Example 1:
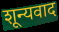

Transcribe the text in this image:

शून्यवाद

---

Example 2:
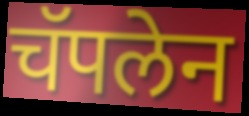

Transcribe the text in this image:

चॅपलेन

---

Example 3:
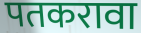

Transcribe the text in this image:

पतकरावा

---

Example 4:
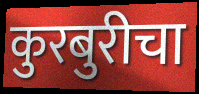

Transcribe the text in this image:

कुरबुरीचा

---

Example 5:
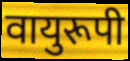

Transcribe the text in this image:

वायुरूपी